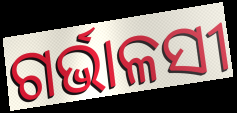
ଗର୍ଭାଳସୀ